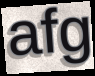
afg